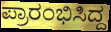
ಪ್ರಾರಂಭಿಸಿದ್ದ